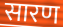
सारण